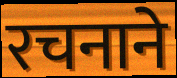
रचनाने